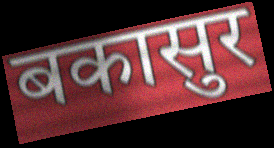
बकासुर